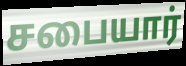
சபையார்